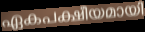
ഏകപക്ഷീയമായി